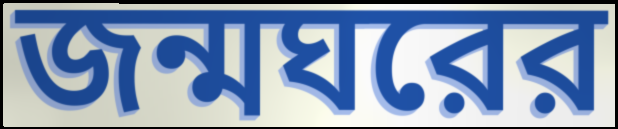
জন্মঘরের